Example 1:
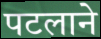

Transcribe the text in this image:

पटलाने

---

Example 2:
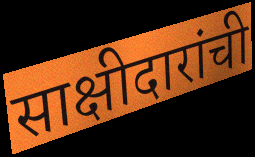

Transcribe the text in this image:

साक्षीदारांची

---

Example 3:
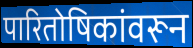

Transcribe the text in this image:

पारितोषिकांवरून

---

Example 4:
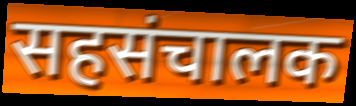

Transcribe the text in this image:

सहसंचालक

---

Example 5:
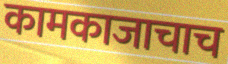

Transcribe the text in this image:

कामकाजाचाच